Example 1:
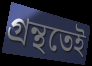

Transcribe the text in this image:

গ্ৰন্থতেই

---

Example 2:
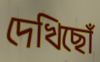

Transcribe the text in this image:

দেখিছোঁ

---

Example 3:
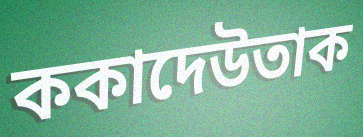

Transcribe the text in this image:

ককাদেউতাক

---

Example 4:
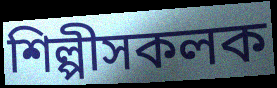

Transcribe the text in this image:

শিল্পীসকলক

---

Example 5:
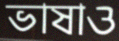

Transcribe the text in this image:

ভাষাও